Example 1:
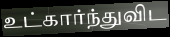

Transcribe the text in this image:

உட்கார்ந்துவிட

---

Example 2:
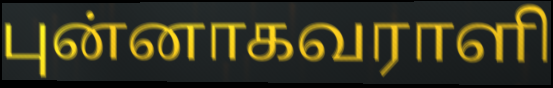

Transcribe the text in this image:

புன்னாகவராளி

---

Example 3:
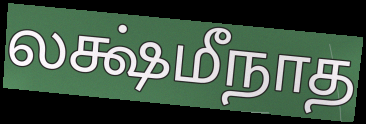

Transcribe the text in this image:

லக்ஷ்மீநாத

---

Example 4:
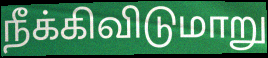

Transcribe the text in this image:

நீக்கிவிடுமாறு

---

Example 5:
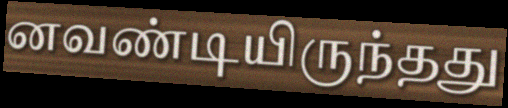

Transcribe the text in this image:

னவண்டியிருந்தது